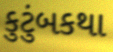
કુટુંબકથા